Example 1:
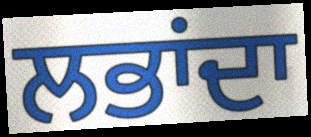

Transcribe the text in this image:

ਲਭਾਂਦਾ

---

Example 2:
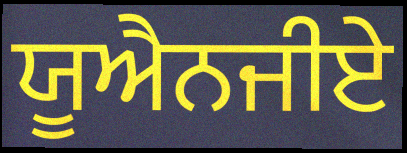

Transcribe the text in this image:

ਯੂਐਨਜੀਏ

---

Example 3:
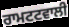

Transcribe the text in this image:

ਰਾਮਟਟਵਾਲੀ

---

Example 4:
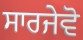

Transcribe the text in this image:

ਸਾਰਜੇਵੋ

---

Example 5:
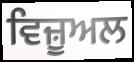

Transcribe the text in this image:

ਵਿਜ਼ੂਅਲ